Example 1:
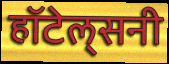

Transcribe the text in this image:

हॉटेल्सनी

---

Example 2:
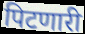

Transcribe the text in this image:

पिटणारी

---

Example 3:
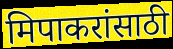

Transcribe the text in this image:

मिपाकरांसाठी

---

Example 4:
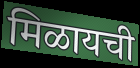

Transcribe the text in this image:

मिळायची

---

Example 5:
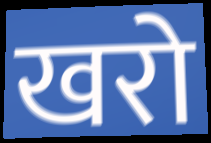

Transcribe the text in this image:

खरो